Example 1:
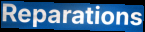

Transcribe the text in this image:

Reparations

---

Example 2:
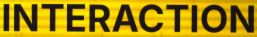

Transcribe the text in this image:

INTERACTION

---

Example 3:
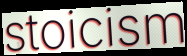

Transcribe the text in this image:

stoicism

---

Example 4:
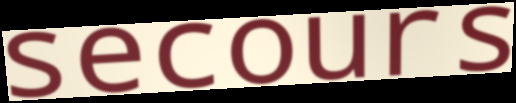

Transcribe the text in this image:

secours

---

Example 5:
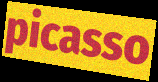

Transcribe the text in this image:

picasso